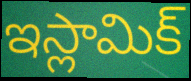
ఇస్లామిక్